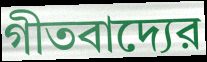
গীতবাদ্যের